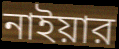
নাইয়ার